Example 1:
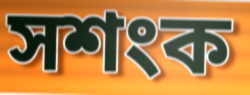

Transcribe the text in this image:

সশংক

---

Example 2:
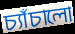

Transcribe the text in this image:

চ্যাঁচালো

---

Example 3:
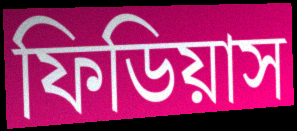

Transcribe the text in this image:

ফিডিয়াস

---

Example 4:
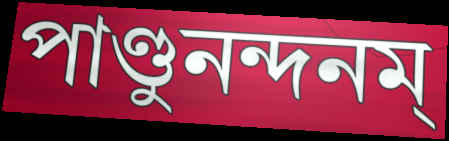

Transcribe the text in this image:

পাণ্ডুনন্দনম্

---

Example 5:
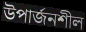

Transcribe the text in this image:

উপার্জনশীল